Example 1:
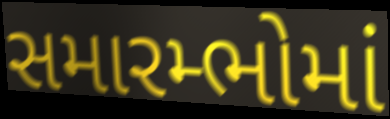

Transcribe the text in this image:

સમારમ્ભોમાં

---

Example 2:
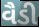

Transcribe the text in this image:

વૈડી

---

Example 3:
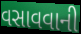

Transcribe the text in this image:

વસાવવાની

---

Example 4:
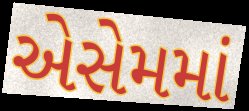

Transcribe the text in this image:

એસેમમાં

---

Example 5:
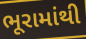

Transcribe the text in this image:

ભૂરામાંથી